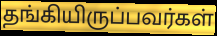
தங்கியிருப்பவர்கள்